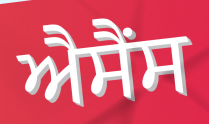
ਐਸੈਂਸ